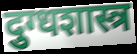
दुग्धशास्त्र